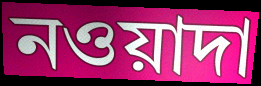
নওয়াদা